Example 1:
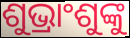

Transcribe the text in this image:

ଶୁଭ୍ରାଂଶୁଙ୍କୁ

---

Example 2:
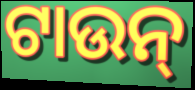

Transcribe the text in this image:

ଟାଉନ୍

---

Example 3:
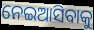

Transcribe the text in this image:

ନେଇଆସିବାକୁ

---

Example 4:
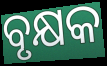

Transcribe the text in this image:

ବୃକ୍ଷକ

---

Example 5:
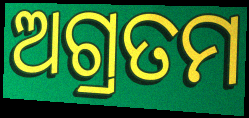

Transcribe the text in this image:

ଅଗ୍ରତମ